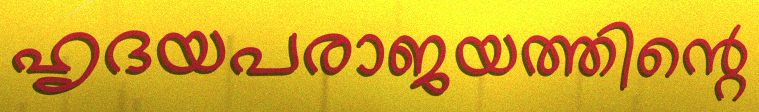
ഹൃദയപരാജയത്തിന്റെ